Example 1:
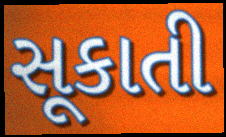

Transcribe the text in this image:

સૂકાતી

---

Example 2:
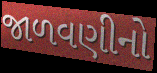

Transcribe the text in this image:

જાળવણીનો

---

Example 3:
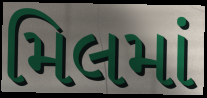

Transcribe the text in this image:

મિલમાં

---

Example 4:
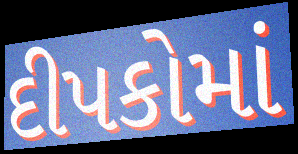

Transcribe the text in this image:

દીપકોમાં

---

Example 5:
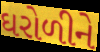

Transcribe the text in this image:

ઘરોળીને